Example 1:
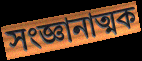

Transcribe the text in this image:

সংজ্ঞানাত্মক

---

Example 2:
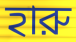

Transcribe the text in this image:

হারু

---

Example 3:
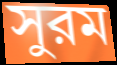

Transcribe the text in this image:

সুরম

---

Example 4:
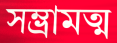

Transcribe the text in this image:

সম্ভ্রামত্ম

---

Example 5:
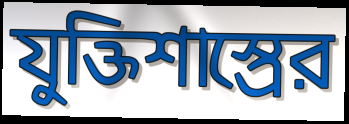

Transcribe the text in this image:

যুক্তিশাস্ত্রের